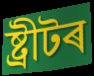
ষ্ট্ৰীটৰ